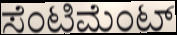
ಸೆಂಟಿಮೆಂಟ್